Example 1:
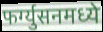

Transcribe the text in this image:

फर्ग्युसनमध्ये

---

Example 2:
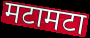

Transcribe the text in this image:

मटामटा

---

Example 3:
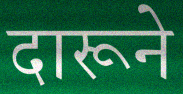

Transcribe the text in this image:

दारूने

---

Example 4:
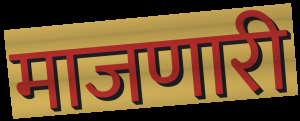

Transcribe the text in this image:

माजणारी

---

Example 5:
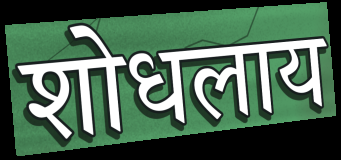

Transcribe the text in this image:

शोधलाय